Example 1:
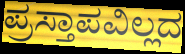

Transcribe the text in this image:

ಪ್ರಸ್ತಾಪವಿಲ್ಲದ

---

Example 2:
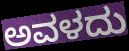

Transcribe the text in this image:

ಅವಳದು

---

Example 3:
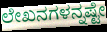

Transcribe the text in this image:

ಲೇಖನಗಳನ್ನಷ್ಟೇ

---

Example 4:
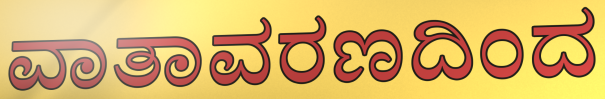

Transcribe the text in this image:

ವಾತಾವರಣದಿಂದ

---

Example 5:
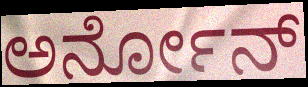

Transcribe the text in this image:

ಅರ್ನೋನ್